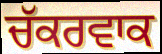
ਚੱਕਰਵਾਕ